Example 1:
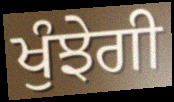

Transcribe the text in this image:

ਖੁੰਝੇਗੀ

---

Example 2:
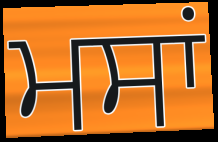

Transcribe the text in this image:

ਮਸਾਂ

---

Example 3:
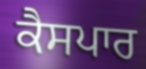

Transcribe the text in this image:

ਕੈਸਪਾਰ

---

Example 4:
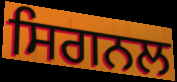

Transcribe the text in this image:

ਸਿਗਨਲ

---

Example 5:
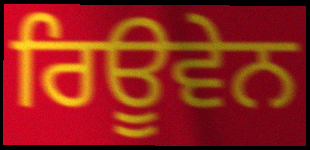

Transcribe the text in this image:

ਰਿਊਵੇਨ